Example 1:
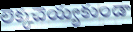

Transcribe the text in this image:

లెక్కచెయ్యకుండా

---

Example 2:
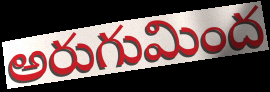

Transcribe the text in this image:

అరుగుమింద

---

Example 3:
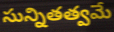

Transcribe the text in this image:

సున్నితత్వమే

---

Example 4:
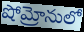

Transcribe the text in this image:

షోమ్రోనులో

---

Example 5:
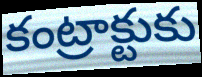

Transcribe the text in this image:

కంట్రాక్టుకు